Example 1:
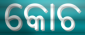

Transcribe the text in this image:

କୋଚ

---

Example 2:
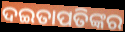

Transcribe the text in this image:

ଦଇତାପତିଙ୍କର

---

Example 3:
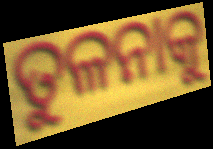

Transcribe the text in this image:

ତୁଳନାକୁ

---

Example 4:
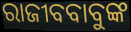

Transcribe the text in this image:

ରାଜୀବବାବୁଙ୍କ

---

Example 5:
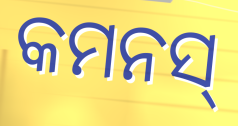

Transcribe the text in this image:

କମନସ୍